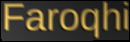
Faroqhi